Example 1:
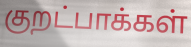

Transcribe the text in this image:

குறட்பாக்கள்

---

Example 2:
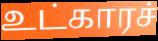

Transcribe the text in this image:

உட்காரச்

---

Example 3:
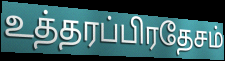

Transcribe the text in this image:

உத்தரப்பிரதேசம்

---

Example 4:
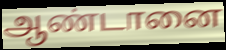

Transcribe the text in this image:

ஆண்டானை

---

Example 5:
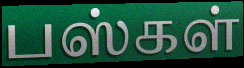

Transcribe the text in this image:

பஸ்கள்